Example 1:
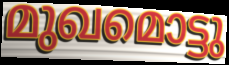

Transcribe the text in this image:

മുഖമൊട്ടു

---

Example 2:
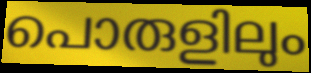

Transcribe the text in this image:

പൊരുളിലും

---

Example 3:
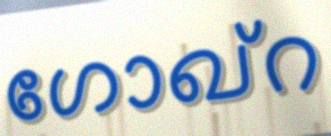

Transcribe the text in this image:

ഗോഖ്റ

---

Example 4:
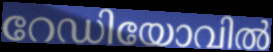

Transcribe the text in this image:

റേഡിയോവിൽ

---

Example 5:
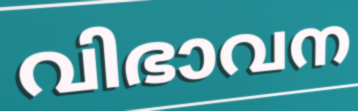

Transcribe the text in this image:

വിഭാവന